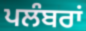
ਪਲੰਬਰਾਂ